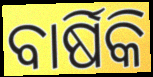
ବାର୍ଷିକି